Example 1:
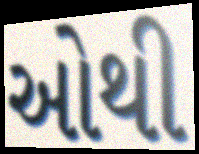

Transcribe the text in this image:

ઓથી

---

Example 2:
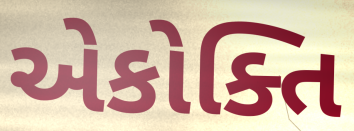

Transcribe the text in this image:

એકોક્તિ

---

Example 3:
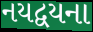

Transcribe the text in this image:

નયદ્વયના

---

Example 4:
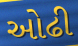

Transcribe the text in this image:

ઓઢી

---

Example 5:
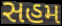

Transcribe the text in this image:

સહમ